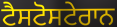
ਟੈਸਟੋਸਟੇਰਾਨ